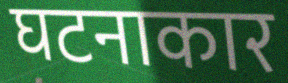
घटनाकार